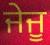
ਜੇਜੂ